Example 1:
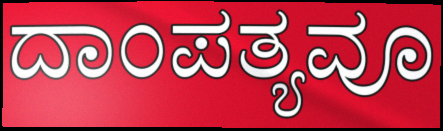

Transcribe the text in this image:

ದಾಂಪತ್ಯವೂ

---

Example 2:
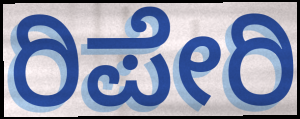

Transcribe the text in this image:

ರಿಪೇರಿ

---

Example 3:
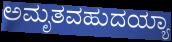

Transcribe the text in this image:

ಅಮೃತವಹುದಯ್ಯಾ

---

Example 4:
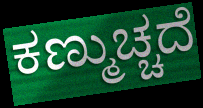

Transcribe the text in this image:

ಕಣ್ಮುಚ್ಚದೆ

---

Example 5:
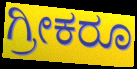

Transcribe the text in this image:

ಗ್ರೀಕರೂ